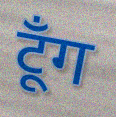
टूँग